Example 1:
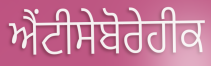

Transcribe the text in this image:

ਐਂਟੀਸੇਬੋਰੇਹੀਕ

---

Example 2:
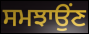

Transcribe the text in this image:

ਸਮਝਾਉਂਣ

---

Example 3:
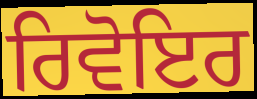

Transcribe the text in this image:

ਰਿਵੋਇਰ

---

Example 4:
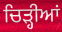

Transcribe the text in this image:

ਚਿੜ੍ਹੀਆਂ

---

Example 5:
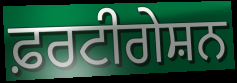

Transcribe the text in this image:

ਫ਼ਰਟੀਗੇਸ਼ਨ